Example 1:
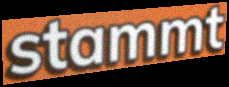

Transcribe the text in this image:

stammt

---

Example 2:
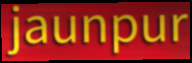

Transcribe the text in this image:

jaunpur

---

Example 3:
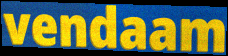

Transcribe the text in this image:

vendaam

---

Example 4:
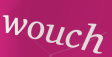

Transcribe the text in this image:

wouch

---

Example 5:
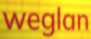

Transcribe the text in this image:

weglan